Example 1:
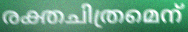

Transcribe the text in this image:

രക്തചിത്രമെന്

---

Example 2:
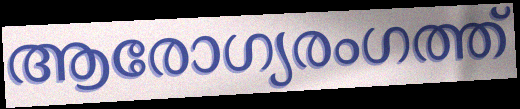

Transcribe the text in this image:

ആരോഗ്യരംഗത്ത്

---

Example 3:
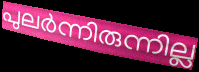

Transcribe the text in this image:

പുലർന്നിരുന്നില്ല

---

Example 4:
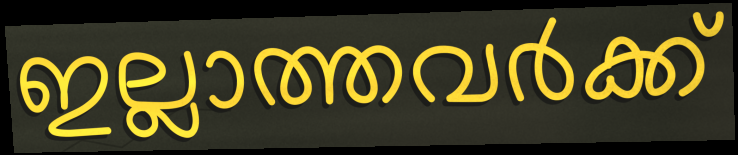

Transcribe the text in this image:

ഇല്ലാത്തവർക്ക്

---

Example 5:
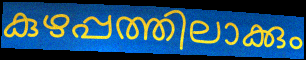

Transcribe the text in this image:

കുഴപ്പത്തിലാക്കും